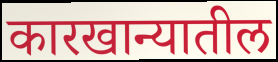
कारखान्यातील